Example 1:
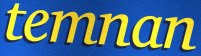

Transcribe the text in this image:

temnan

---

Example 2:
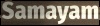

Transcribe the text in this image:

Samayam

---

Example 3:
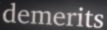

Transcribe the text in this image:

demerits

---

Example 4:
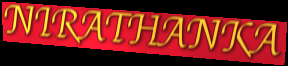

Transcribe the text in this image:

NIRATHANKA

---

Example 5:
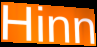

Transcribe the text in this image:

Hinn